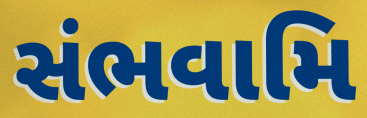
સંભવામિ